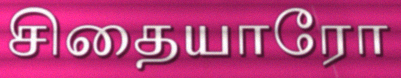
சிதையாரோ